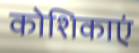
कोशिकाएं